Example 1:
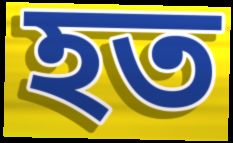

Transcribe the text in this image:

হত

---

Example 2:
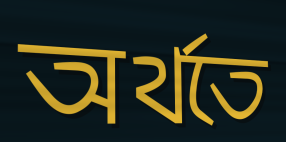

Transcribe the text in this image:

অৰ্থতে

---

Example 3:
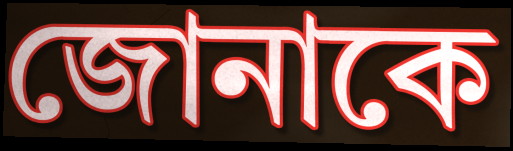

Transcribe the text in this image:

জোনাকে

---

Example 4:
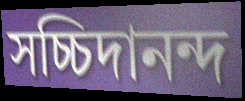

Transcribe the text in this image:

সচ্চিদানন্দ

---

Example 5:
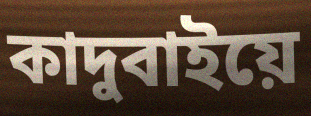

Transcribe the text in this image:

কাদুবাইয়ে